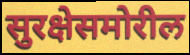
सुरक्षेसमोरील